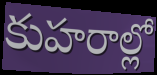
కుహరాల్లో